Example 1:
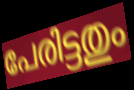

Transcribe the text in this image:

പേരിട്ടതും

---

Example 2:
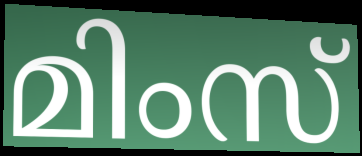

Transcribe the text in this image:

മിംസ്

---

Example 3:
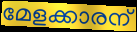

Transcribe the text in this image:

മേളക്കാരന്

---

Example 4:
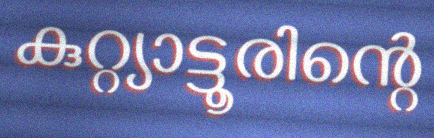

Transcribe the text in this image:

കുറ്റ്യാട്ടൂരിന്റെ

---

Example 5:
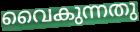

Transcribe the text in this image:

വൈകുന്നതു